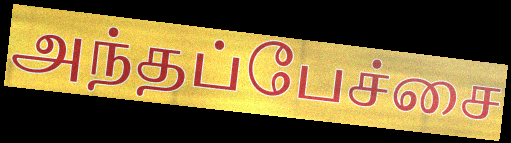
அந்தப்பேச்சை